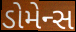
ડોમેન્સ